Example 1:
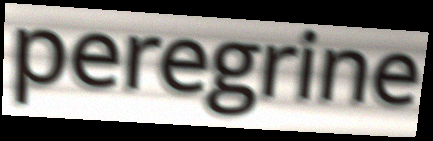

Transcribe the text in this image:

peregrine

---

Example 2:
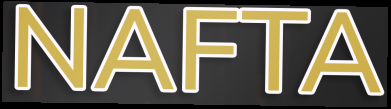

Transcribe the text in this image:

NAFTA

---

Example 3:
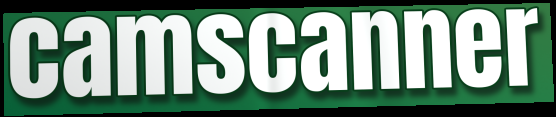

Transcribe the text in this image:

camscanner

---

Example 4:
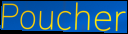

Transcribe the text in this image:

Poucher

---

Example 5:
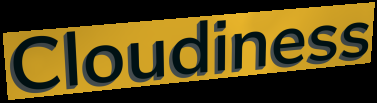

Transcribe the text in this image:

Cloudiness